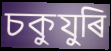
চকুযুৰি